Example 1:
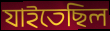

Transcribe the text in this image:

যাইতেছিল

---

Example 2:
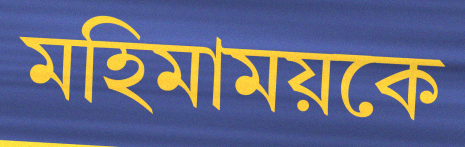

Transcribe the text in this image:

মহিমাময়কে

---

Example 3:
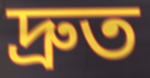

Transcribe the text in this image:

দ্রুত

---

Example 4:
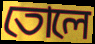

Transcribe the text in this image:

তোলে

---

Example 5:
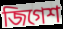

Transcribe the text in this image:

জিগেশ